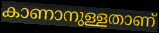
കാണാനുള്ളതാണ്